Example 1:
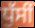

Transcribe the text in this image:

ਧੁੱਸੀਂ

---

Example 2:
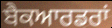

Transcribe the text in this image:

ਬੈਕਆਰਡਰਾਂ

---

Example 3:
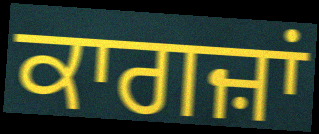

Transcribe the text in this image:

ਕਾਗਜ਼ਾਂ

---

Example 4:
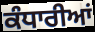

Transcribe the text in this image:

ਕੰਧਾਰੀਆਂ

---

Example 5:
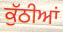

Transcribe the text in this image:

ਕੁੱਠੀਆਂ